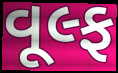
વૂલ્ફ